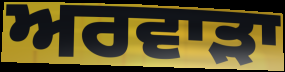
ਅਰਵਾੜਾ